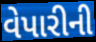
વેપારીની